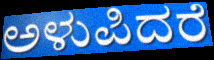
ಅಳುಪಿದರೆ